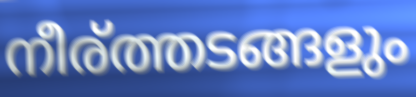
നീര്ത്തടങ്ങളും